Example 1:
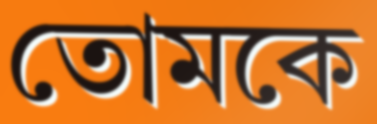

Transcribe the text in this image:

তোমকে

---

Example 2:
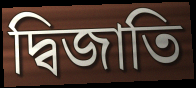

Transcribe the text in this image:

দ্বিজাতি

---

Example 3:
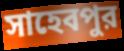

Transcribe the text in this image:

সাহেবপুর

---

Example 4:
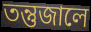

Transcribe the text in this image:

তন্তুজালে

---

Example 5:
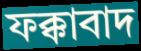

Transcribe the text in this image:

ফক্কাবাদ